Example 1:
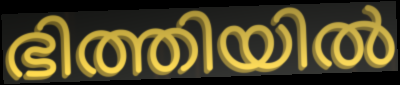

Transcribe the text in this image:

ഭിത്തിയിൽ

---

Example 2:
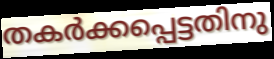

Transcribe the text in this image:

തകർക്കപ്പെട്ടതിനു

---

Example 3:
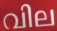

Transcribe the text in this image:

വില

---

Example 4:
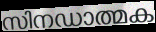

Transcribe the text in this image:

സിനഡാത്മക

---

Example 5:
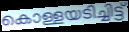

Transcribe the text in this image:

കൊള്ളയടിച്ചിട്ട്